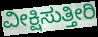
ವೀಕ್ಷಿಸುತ್ತೀರಿ